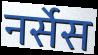
नर्सेस